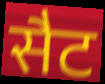
सैट